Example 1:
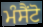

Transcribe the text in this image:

ਮੰਸੈਂਟੋ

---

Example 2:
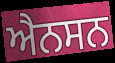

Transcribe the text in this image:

ਐਨਸਨ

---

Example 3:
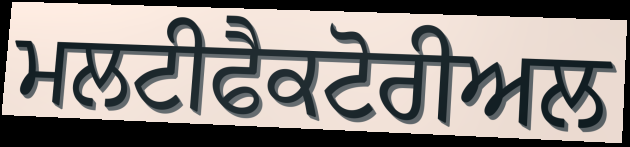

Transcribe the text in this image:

ਮਲਟੀਫੈਕਟੋਰੀਅਲ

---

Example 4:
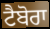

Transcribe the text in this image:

ਟੈਬੋਰਾ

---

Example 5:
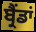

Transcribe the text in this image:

ਬ੍ਰੈਂਡਾਂ